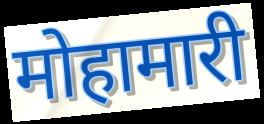
मोहामारी